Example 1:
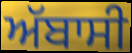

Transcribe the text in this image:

ਅੱਬਾਸੀ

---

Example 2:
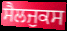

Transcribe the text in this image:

ਸੈਲਜੁਕਸ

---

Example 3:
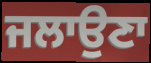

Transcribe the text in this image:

ਜਲਾਉਣਾ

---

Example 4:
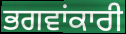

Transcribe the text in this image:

ਭਗਵਾਂਕਾਰੀ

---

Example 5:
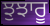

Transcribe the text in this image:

ਝੁਝਾਰੂ